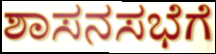
ಶಾಸನಸಭೆಗೆ